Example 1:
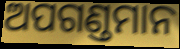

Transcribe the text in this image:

ଅପଗଣ୍ଡମାନ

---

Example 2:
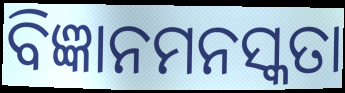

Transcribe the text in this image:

ବିଜ୍ଞାନମନସ୍କତା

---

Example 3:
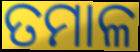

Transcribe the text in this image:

ତମାଳ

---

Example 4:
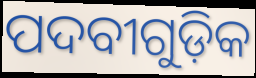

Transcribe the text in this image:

ପଦବୀଗୁଡ଼ିକ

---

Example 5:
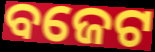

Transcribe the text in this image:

ବଜେଟ